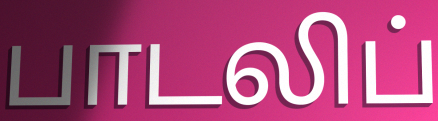
பாடலிப்